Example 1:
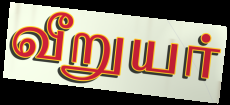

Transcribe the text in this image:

வீறுயர்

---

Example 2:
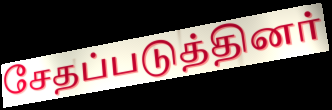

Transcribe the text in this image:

சேதப்படுத்தினர்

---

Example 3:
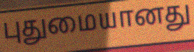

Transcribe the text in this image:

புதுமையானது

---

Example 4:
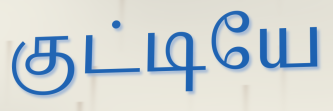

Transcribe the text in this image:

குட்டியே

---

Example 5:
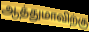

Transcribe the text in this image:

ஆத்துமாவிற்கு